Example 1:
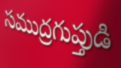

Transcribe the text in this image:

సముద్రగుప్తుడి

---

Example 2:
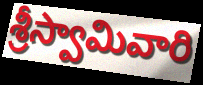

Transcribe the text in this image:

శ్రీస్వామివారి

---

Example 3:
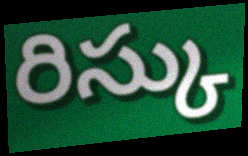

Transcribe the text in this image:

రిస్కు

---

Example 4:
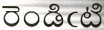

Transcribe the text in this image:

రెండిఁటి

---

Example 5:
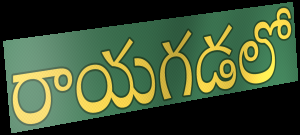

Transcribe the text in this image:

రాయగడలో